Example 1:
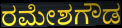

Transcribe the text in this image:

ರಮೇಶಗೌಡ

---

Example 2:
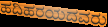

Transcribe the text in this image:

ಹದಿಹರಯದವರು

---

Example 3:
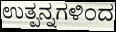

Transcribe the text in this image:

ಉತ್ಪನ್ನಗಳಿಂದ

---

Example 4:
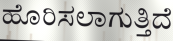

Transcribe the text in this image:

ಹೊರಿಸಲಾಗುತ್ತಿದೆ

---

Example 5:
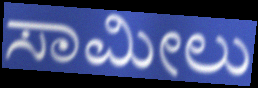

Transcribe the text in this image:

ಸಾಮೀಲು